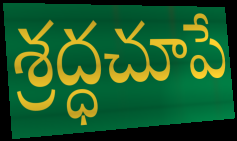
శ్రద్ధచూపే